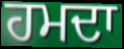
ਹਮਦਾ